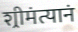
श्रीमंत्यानं